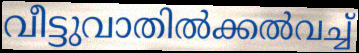
വീട്ടുവാതിൽക്കൽവച്ച്